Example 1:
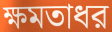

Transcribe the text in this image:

ক্ষমতাধর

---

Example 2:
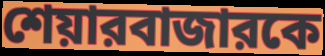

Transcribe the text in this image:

শেয়ারবাজারকে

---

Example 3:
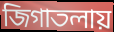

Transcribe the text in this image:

জিগাতলায়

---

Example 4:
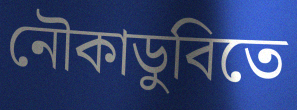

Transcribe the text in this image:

নৌকাডুবিতে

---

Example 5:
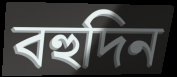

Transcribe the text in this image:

বহুদিন